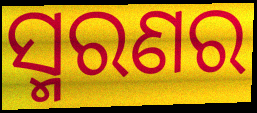
ସ୍ମରଣର